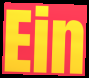
Ein